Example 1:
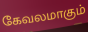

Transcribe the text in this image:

கேவலமாகும்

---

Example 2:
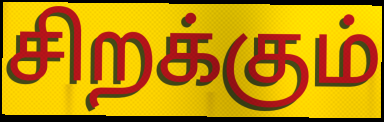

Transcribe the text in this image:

சிறக்கும்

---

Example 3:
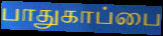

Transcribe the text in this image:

பாதுகாப்பை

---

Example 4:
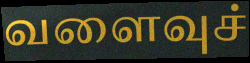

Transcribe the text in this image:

வளைவுச்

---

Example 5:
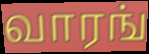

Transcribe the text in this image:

வாரங்